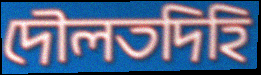
দৌলতদিহি